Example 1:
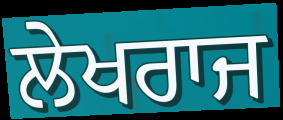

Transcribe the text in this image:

ਲੇਖਰਾਜ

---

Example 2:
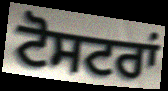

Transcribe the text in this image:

ਟੋਸਟਰਾਂ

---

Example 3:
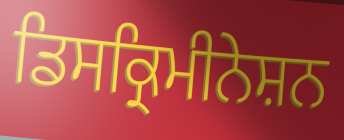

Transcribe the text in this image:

ਡਿਸਕ੍ਰਿਮੀਨੇਸ਼ਨ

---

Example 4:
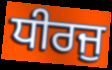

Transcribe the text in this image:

ਧੀਰਜੁ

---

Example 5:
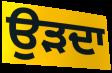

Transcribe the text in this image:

ਉੜਦਾ